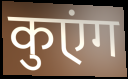
कुएंग